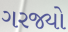
ગરજ્યો